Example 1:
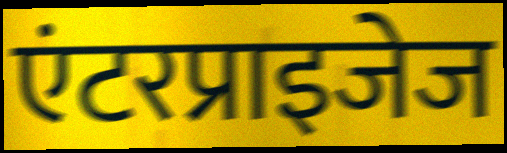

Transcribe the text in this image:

एंटरप्राइजेज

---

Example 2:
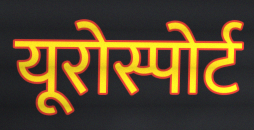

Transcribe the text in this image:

यूरोस्पोर्ट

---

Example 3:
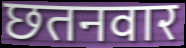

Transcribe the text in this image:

छतनवार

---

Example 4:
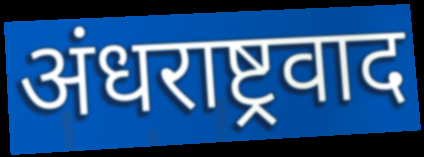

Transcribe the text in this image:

अंधराष्ट्रवाद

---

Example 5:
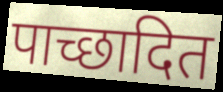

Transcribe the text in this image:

पाच्छादित